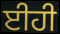
ਈਹੀ